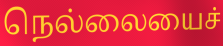
நெல்லையைச்